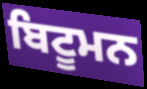
ਬਿਟੂਮਨ